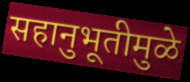
सहानुभूतीमुळे